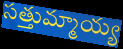
సత్తుమ్మాయ్య